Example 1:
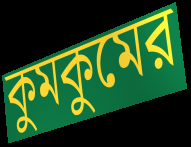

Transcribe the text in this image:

কুমকুমের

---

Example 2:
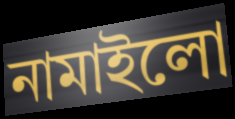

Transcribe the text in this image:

নামাইলো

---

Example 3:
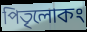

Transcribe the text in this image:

পিতৃলোকং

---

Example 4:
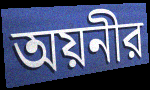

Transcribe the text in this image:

অয়নীর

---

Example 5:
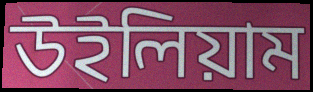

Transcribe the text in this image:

উইলিয়াম